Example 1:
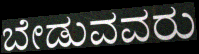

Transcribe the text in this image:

ಬೇಡುವವರು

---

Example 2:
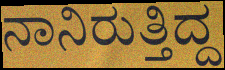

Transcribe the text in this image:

ನಾನಿರುತ್ತಿದ್ದ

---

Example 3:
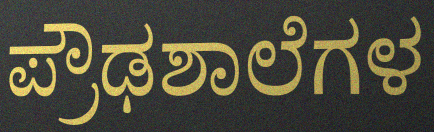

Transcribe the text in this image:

ಪ್ರೌಢಶಾಲೆಗಳ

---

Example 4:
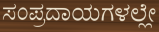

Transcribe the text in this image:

ಸಂಪ್ರದಾಯಗಳಲ್ಲೇ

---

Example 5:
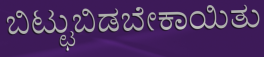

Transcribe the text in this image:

ಬಿಟ್ಟುಬಿಡಬೇಕಾಯಿತು